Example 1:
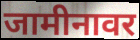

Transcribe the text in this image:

जामीनावर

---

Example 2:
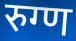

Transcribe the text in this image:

रुग्ण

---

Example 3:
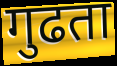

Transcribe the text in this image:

गुढता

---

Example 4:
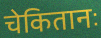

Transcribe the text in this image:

चेकितानः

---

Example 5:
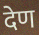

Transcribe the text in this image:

देण